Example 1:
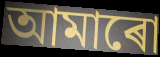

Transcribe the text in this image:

আমাৰো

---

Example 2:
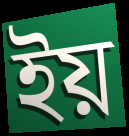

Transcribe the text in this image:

ইয়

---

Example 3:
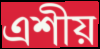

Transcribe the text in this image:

এশীয়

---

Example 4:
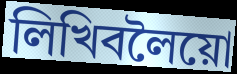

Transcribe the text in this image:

লিখিবলৈয়ো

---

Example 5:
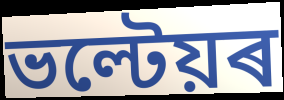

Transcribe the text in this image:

ভল্টেয়ৰ